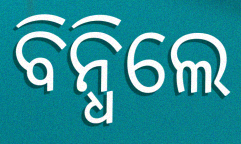
ବିନ୍ଧିଲେ